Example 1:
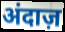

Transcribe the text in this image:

अंदाज़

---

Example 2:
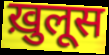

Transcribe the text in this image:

ख़ुलूस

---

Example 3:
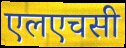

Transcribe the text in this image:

एलएचसी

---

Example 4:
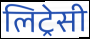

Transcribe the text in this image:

लिट्रेसी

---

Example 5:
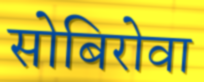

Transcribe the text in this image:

सोबिरोवा